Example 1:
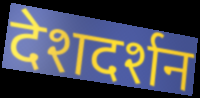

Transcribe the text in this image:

देशदर्शन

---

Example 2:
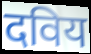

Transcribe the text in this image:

दविय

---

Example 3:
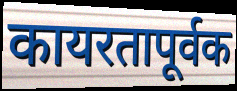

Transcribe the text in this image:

कायरतापूर्वक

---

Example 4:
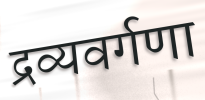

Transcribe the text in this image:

द्रव्यवर्गणा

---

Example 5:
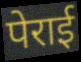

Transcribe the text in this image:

पेराई